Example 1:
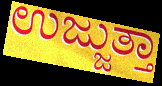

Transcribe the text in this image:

ಉಜ್ಜುತ್ತಾ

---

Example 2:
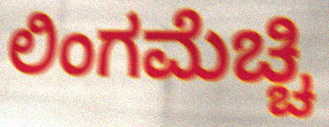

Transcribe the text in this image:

ಲಿಂಗಮೆಚ್ಚಿ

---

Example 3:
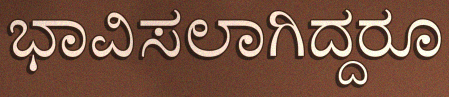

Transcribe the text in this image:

ಭಾವಿಸಲಾಗಿದ್ದರೂ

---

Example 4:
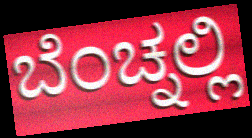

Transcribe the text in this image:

ಬೆಂಚ್ನಲ್ಲಿ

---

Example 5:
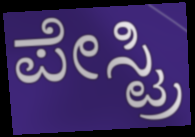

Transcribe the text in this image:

ಪೇಸ್ಟ್ರಿ